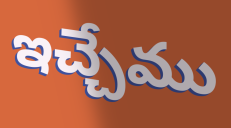
ఇచ్చేము